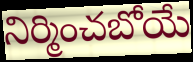
నిర్మించబోయే